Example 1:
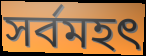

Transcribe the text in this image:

সর্বমহৎ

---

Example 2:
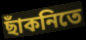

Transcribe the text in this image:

ছাঁকনিতে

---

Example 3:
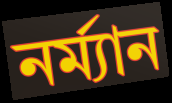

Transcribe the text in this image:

নর্ম্যান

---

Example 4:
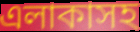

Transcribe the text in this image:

এলাকাসহ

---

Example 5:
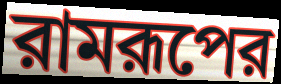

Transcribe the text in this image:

রামরূপের